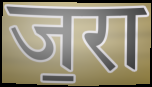
ज॒रा